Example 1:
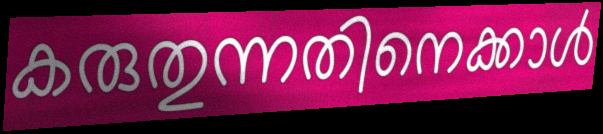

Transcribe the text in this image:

കരുതുന്നതിനെക്കാൾ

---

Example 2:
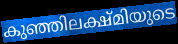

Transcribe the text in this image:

കുഞ്ഞിലക്ഷ്മിയുടെ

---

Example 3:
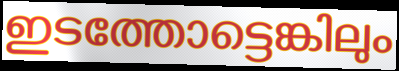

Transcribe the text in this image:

ഇടത്തോട്ടെങ്കിലും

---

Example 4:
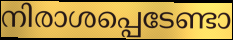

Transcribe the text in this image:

നിരാശപ്പെടേണ്ടാ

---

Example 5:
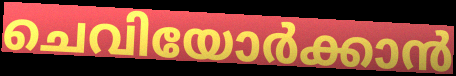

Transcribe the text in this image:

ചെവിയോർക്കാൻ